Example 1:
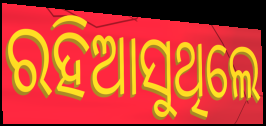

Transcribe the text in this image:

ରହିଆସୁଥିଲେ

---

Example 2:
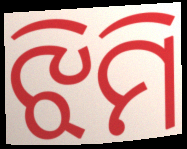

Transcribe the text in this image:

ଝିମି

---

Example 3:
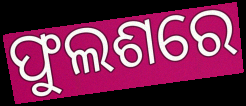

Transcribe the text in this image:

ଫୁଲଶରେ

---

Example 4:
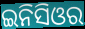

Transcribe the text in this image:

ଇନିସିଓର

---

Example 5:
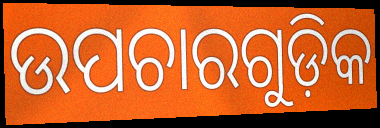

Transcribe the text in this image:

ଉପଚାରଗୁଡ଼ିକ